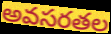
అవసరతల